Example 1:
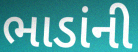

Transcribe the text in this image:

ભાડાંની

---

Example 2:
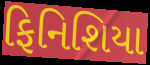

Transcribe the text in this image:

ફિનિશિયા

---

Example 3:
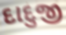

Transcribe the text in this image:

દાદુજી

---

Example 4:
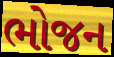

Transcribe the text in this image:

ભોજન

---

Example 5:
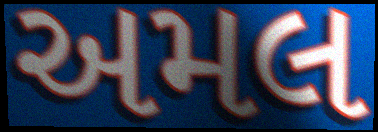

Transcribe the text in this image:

અમલ